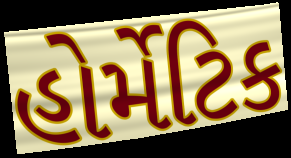
હોર્મેટિક